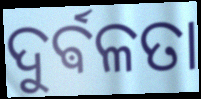
ଦୁର୍ଵଳତା